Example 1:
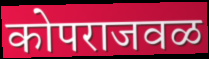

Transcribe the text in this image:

कोपराजवळ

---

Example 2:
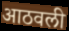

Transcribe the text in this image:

आठवली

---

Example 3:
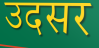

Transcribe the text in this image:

उदसर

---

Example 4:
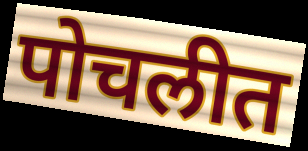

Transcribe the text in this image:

पोचलीत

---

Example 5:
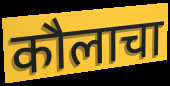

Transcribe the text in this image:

कौलाचा